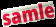
samle